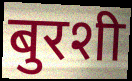
बुरशी